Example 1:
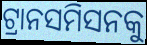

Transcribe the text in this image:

ଟ୍ରାନସମିସନକୁ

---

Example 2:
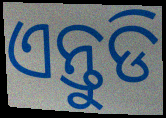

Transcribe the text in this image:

ଏନ୍ତୁଡି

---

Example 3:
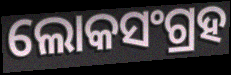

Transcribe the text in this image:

ଲୋକସଂଗ୍ରହ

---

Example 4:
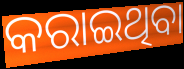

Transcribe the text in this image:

କରାଇଥିବା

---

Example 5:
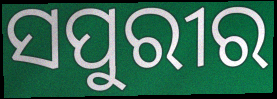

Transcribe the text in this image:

ସପୁରୀର